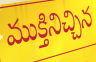
ముక్తినిచ్చిన